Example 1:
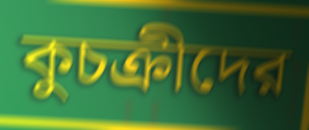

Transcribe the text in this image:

কুচক্রীদের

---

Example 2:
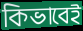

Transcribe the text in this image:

কিভাবেই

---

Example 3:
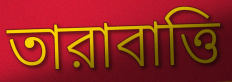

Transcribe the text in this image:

তারাবাত্তি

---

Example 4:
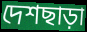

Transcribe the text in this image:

দেশছাড়া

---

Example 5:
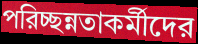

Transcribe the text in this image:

পরিচ্ছন্নতাকর্মীদের